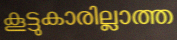
കൂട്ടുകാരില്ലാത്ത